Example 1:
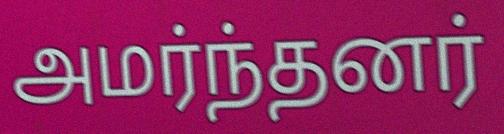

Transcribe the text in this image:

அமர்ந்தனர்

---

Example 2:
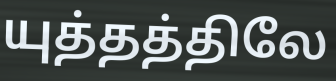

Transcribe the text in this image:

யுத்தத்திலே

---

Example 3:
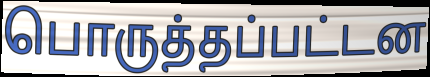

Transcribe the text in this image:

பொருத்தப்பட்டன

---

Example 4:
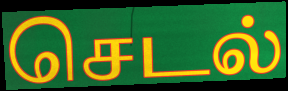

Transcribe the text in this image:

செடல்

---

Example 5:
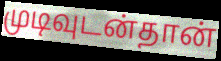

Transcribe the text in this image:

முடிவுடன்தான்